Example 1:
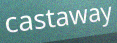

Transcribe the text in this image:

castaway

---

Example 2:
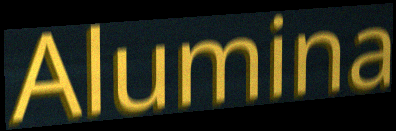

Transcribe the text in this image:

Alumina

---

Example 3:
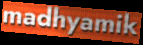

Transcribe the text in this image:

madhyamik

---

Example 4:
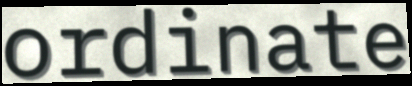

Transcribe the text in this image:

ordinate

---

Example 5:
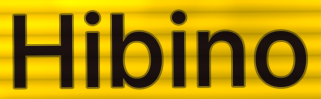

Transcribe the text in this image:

Hibino